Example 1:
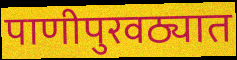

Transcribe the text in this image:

पाणीपुरवठ्यात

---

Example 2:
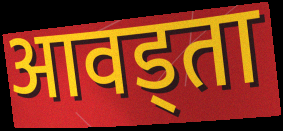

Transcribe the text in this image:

आवड्ता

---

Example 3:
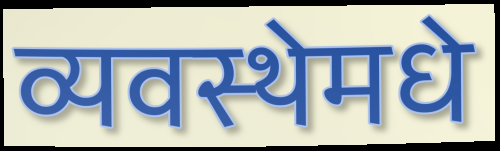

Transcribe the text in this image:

व्यवस्थेमधे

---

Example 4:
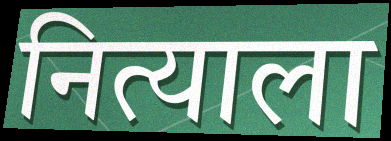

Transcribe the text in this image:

नित्याला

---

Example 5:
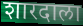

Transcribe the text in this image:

शारदाला